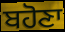
ਬਹੋਣਾ